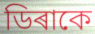
ডিৰাকে